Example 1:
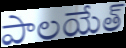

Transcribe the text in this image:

పాలయేత్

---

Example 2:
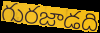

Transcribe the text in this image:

గురజాడది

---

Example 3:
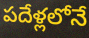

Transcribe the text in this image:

పదేళ్లలోనే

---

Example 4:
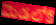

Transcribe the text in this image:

మెడలోకి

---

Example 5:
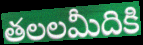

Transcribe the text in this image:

తలలమీదికి